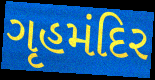
ગૃહમંદિર